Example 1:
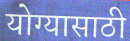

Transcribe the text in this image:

योग्यासाठी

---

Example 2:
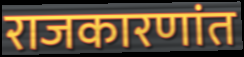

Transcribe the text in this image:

राजकारणांत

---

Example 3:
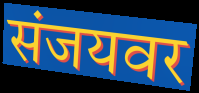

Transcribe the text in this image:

संजयवर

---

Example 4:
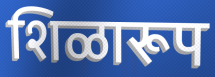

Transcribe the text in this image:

शिळारूप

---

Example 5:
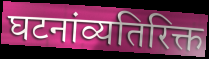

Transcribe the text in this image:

घटनांव्यतिरिक्त